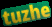
tuzhe